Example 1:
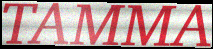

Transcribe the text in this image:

TAMMA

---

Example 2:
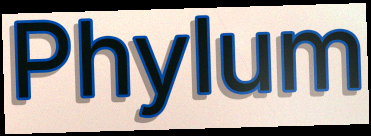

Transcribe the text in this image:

Phylum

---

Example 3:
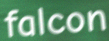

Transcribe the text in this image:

falcon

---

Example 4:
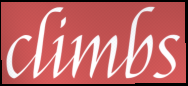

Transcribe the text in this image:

climbs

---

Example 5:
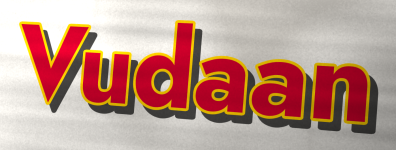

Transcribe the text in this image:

Vudaan